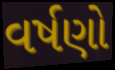
વર્ષણો